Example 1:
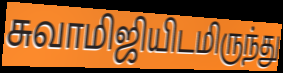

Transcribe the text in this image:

சுவாமிஜியிடமிருந்து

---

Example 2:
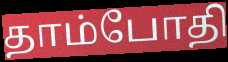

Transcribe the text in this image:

தாம்போதி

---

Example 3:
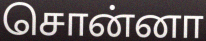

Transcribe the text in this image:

சொன்னா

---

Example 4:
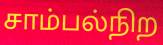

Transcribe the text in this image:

சாம்பல்நிற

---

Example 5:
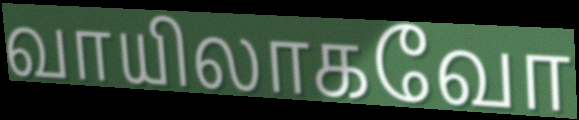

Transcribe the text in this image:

வாயிலாகவோ